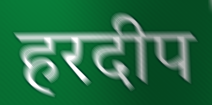
हरदीप